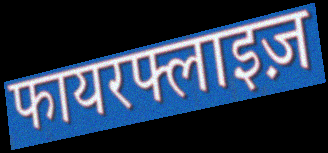
फायरफ्लाइज़